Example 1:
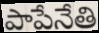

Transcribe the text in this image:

పాపేనేతి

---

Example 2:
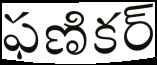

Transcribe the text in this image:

ఫణికర్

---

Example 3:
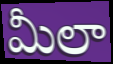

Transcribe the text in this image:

మీలా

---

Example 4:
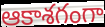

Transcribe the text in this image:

ఆకాశగంగా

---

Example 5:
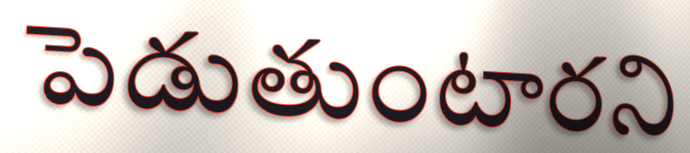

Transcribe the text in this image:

పెడుతుంటారని